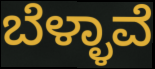
ಬೆಳ್ಳಾವೆ